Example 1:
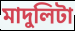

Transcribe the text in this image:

মাদুলিটা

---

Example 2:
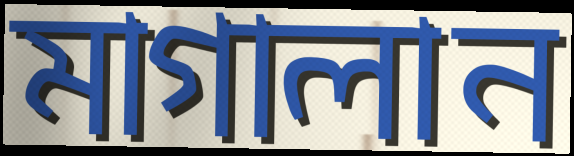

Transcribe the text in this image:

মাগালান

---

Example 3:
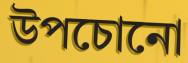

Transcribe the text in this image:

উপচোনো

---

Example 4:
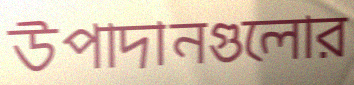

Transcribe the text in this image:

উপাদানগুলোর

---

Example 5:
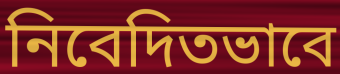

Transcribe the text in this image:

নিবেদিতভাবে